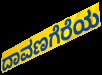
ದಾವಣಗೆರೆಯ